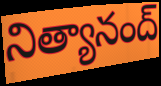
నిత్యానంద్